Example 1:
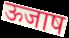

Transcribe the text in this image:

ऊजाष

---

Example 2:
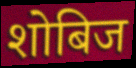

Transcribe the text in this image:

शोबिज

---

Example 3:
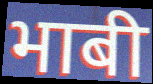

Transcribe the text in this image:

भाबी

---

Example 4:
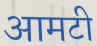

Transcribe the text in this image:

आमटी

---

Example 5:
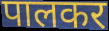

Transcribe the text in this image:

पालकर